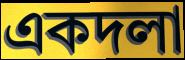
একদলা